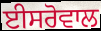
ਈਸਰੋਵਾਲ